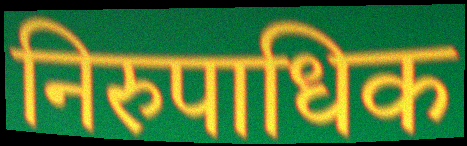
निरुपाधिक